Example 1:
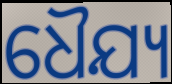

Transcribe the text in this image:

ଧୈଯ୍ଯ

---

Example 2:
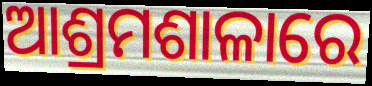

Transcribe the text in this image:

ଆଶ୍ରମଶାଳାରେ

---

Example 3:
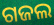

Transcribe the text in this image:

ଗଜଲ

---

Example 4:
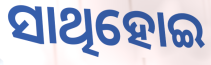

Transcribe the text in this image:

ସାଥିହୋଇ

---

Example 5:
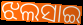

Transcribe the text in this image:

ଝଲସାଇ